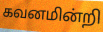
கவனமின்றி